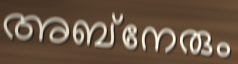
അബ്നേരും